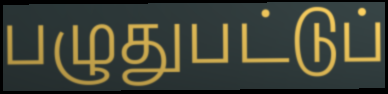
பழுதுபட்டுப்